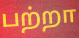
பற்றா